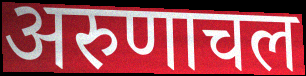
अरुणाचल